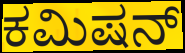
ಕಮಿಷನ್